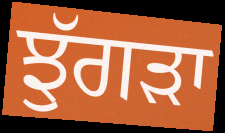
ਝੁੱਗੜਾ